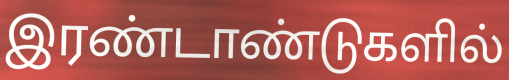
இரண்டாண்டுகளில்